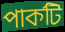
পার্কটি